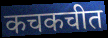
कचकचीत